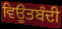
ਵਿਊਤਬੰਦੀ